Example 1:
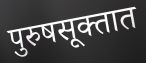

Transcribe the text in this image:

पुरुषसूक्तात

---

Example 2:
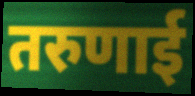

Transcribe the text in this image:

तरुणाई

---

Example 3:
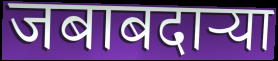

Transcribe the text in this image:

जबाबदाऱ्या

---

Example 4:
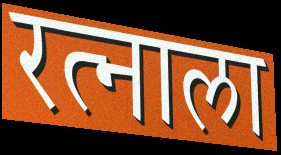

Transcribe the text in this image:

रत्नाला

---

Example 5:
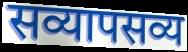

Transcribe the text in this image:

सव्यापसव्य